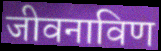
जीवनाविण